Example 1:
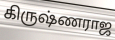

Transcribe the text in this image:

கிருஷ்ணராஜ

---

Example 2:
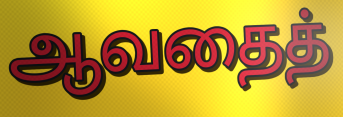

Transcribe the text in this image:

ஆவதைத்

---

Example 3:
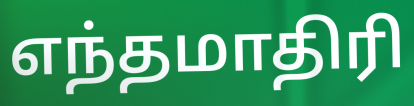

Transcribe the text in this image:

எந்தமாதிரி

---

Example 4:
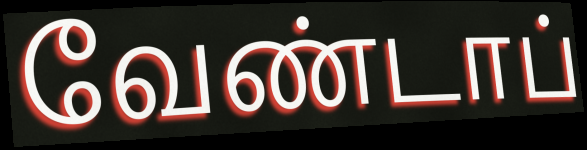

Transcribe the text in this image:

வேண்டாப்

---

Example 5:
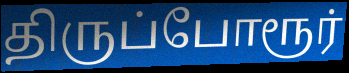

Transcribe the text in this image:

திருப்போரூர்